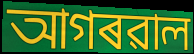
আগৰৱাল